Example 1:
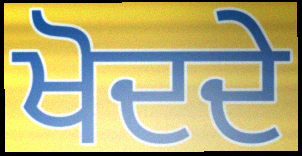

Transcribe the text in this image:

ਖੋਦਦੇ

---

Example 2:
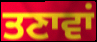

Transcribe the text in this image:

ਤਣਾਵਾਂ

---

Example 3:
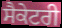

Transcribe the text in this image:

ਸੈਕੇਟਰੀ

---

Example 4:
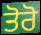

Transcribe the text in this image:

ਤੋਰੋ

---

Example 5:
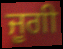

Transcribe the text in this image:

ਜੂਗੀ